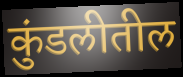
कुंडलीतील